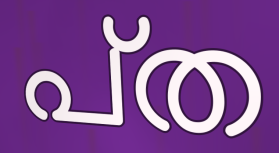
പ്‌ത